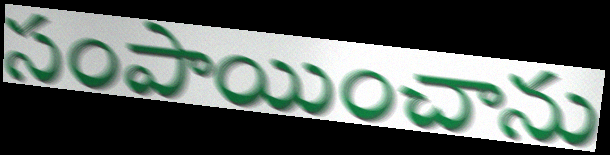
సంపాయించాను